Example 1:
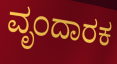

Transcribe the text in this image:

ವೃಂದಾರಕ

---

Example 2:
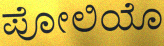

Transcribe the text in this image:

ಪೋಲಿಯೊ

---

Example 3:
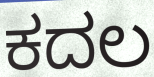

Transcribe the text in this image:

ಕದಲ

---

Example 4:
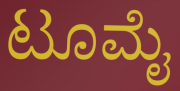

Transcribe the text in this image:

ಟೂಮೈ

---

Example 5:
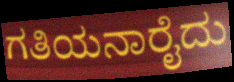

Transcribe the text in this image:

ಗತಿಯನಾರೈದು